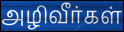
அழிவீர்கள்